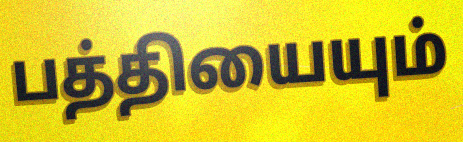
பத்தியையும்